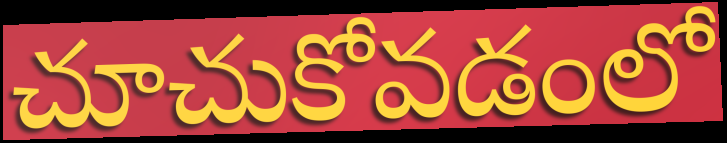
చూచుకోవడంలో